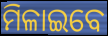
ମିଳାଇବେ